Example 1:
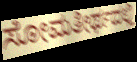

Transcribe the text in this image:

ಸೋಮತೀರ್ಥದಲ್ಲಿ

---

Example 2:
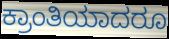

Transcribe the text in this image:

ಕ್ರಾಂತಿಯಾದರೂ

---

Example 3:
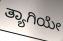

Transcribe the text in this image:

ತ್ಯಾಗಿಯೇ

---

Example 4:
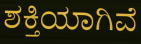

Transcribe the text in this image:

ಶಕ್ತಿಯಾಗಿವೆ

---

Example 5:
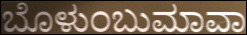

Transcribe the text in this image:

ಬೊಳುಂಬುಮಾವಾ